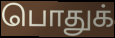
பொதுக்